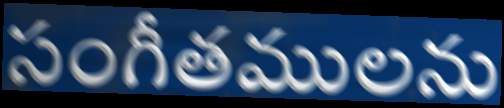
సంగీతములను